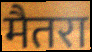
मैतरा